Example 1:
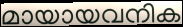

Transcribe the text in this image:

മായായവനിക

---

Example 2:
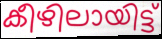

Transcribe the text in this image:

കീഴിലായിട്ട്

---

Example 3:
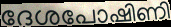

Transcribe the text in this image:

ദേശപോഷിണി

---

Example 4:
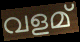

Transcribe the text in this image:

വളമ്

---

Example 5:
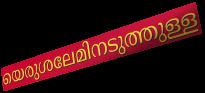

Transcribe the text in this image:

യെരുശലേമിനടുത്തുള്ള